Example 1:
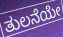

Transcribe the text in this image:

ತುಲನೆಯೇ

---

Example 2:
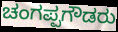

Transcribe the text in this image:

ಚಂಗಪ್ಪಗೌಡರು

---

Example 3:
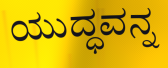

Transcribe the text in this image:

ಯುದ್ಧವನ್ನ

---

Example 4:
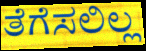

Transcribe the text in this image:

ತೆಗೆಸಲಿಲ್ಲ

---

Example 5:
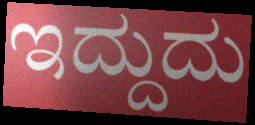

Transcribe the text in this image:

ಇದ್ದುದು